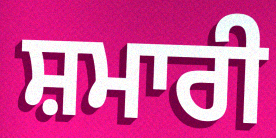
ਸ਼ਮਾਰੀ